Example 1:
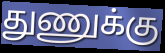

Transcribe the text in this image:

துணுக்கு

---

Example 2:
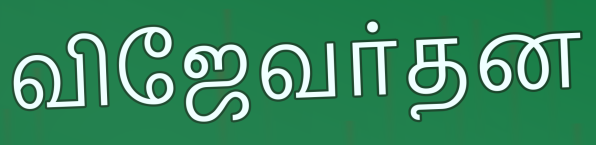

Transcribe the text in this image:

விஜேவர்தன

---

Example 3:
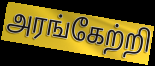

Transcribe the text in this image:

அரங்கேற்றி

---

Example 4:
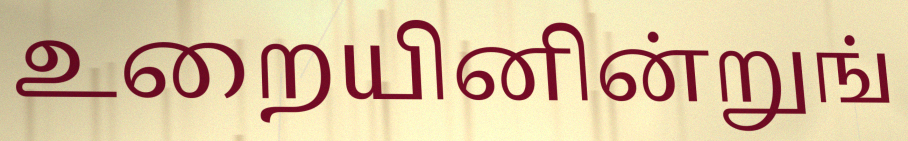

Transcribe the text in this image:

உறையினின்றுங்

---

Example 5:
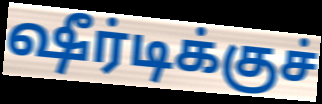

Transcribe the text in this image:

ஷீர்டிக்குச்